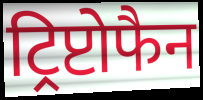
ट्रिप्टोफैन